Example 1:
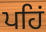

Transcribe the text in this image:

ਪਹਿਂ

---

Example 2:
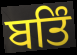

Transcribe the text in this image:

ਬਤਿੰ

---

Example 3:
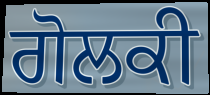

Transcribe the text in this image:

ਗੋਲਕੀ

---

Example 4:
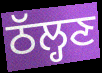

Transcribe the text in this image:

ਠੱਲ੍ਹਣ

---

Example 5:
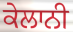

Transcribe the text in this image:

ਕੇਲਾਨੀ